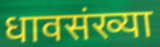
धावसंख्या